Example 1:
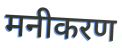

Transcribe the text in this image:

मनीकरण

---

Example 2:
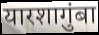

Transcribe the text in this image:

यारशागुंबा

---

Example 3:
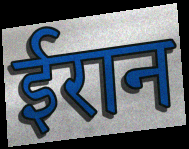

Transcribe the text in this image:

ईरान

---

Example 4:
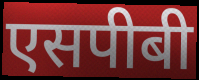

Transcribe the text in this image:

एसपीबी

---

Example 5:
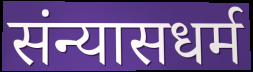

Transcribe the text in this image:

संन्यासधर्म